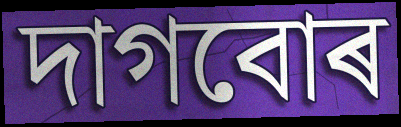
দাগবোৰ